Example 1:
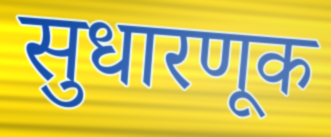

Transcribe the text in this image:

सुधारणूक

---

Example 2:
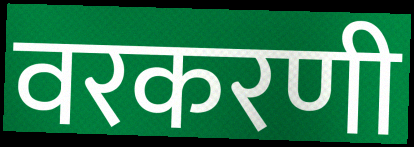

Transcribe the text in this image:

वरकरणी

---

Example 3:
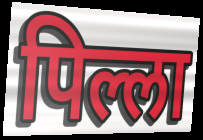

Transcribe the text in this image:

पिल्ला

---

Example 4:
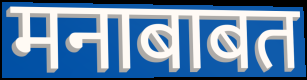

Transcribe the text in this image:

मनाबाबत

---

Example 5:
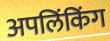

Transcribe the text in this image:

अपलिंकिंग